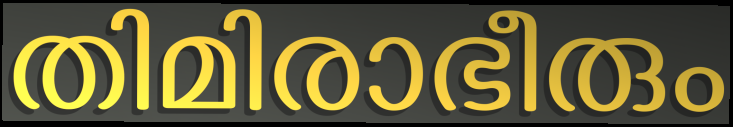
തിമിരാഭീരും